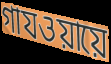
গাযওয়ায়ে